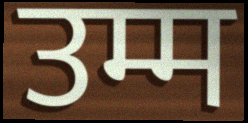
उम्म